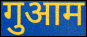
गुआम